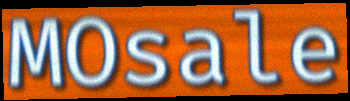
MOsale